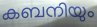
കബനിയും